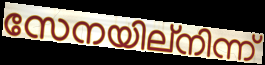
സേനയില്നിന്ന്